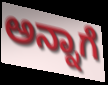
ಅನ್ನಾಗೆ